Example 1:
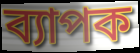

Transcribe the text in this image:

ব্যাপক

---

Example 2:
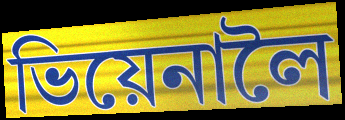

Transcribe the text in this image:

ভিয়েনালৈ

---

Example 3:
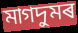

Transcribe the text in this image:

মাগদুমৰ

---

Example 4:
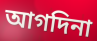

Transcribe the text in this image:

আগদিনা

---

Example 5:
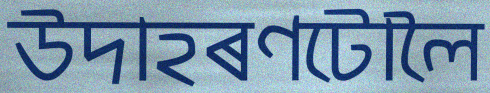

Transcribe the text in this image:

উদাহৰণটোলৈ